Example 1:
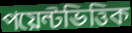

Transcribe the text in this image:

পয়েন্টভিত্তিক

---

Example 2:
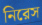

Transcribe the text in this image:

নিরেস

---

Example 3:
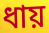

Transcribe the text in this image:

ধায়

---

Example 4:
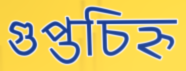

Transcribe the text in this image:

গুপ্তচিহ্ন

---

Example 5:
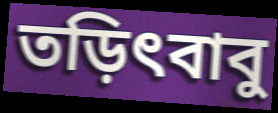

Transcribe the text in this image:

তড়িৎবাবু